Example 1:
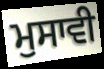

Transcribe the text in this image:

ਮੁਸਾਵੀ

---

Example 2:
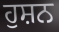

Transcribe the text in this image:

ਹੁਸ਼ਨ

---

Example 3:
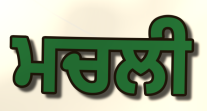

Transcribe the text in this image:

ਮਚਲੀ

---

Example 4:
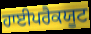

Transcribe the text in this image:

ਹਾਈਪਰੈਕਯੂਟ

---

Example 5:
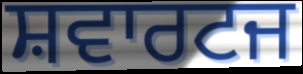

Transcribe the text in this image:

ਸ਼ਵਾਰਟਜ